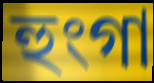
হুংগা